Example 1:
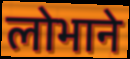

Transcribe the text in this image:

लोभाने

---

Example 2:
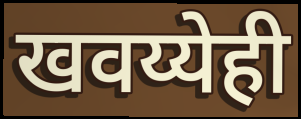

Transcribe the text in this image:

खवय्येही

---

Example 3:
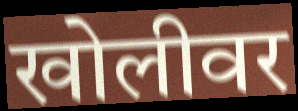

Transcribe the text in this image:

खोलीवर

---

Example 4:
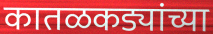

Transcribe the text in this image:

कातळकड्यांच्या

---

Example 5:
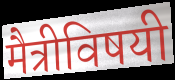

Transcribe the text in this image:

मैत्रीविषयी